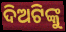
ଦିଅଟିଙ୍କୁ